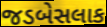
જડબેસલાક